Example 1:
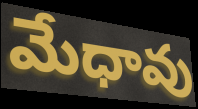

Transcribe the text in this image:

మేధావు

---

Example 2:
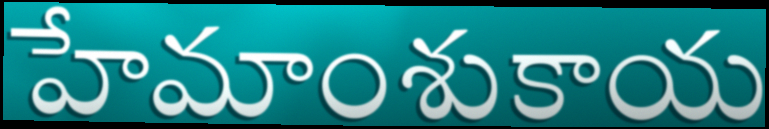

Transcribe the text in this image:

హేమాంశుకాయ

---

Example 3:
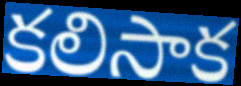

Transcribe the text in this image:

కలిసాక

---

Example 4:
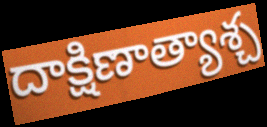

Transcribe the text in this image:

దాక్షిణాత్యాశ్చ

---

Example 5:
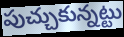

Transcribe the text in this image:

పుచ్చుకున్నట్టు